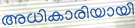
അധികാരിയായി